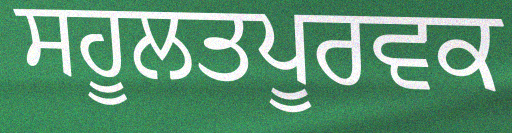
ਸਹੂਲਤਪੂਰਵਕ